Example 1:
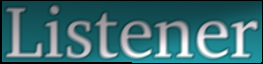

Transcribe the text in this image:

Listener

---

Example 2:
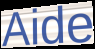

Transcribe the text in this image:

Aide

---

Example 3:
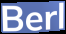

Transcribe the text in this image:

Berl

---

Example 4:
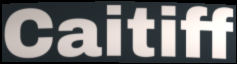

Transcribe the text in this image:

Caitiff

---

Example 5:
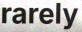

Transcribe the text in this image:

rarely